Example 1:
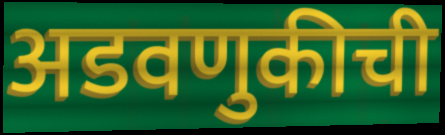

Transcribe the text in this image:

अडवणुकीची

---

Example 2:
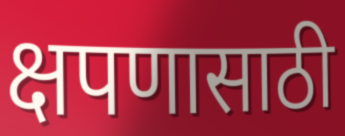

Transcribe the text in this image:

क्षपणासाठी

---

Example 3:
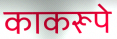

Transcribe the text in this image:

काकरूपे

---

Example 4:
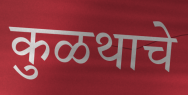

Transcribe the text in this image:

कुळथाचे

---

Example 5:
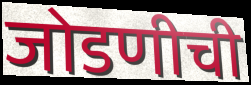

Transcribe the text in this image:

जोडणीची